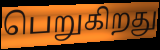
பெறுகிறது